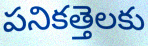
పనికత్తెలకు